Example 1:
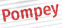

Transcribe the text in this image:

Pompey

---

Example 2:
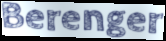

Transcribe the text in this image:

Berenger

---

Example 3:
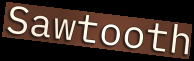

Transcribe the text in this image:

Sawtooth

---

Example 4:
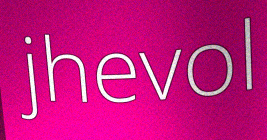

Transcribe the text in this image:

jhevol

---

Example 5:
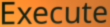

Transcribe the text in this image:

Execute